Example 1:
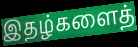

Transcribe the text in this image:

இதழ்களைத்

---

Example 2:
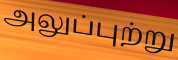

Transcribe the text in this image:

அலுப்புற்று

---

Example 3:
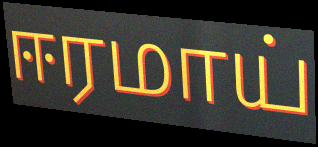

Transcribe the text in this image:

ஈரமாய்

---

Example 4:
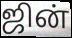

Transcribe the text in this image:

ஜின்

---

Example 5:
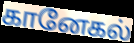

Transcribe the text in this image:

கானேகல்